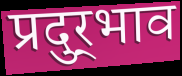
प्रदुर्भाव